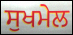
ਸੁਖਮੇਲ